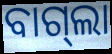
ବାଗ୍‌ଲା